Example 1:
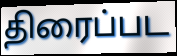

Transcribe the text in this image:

திரைப்பட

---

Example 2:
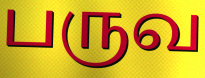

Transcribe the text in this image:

பருவ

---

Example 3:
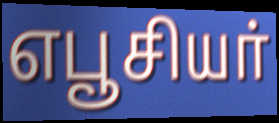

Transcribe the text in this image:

எபூசியர்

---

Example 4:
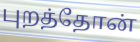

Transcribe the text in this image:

புறத்தோன்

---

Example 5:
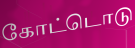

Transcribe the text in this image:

கோட்டொடு